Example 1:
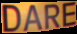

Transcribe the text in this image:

DARE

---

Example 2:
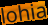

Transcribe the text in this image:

lohia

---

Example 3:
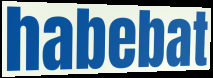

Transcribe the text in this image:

habebat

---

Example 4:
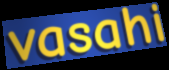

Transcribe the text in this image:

vasahi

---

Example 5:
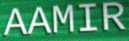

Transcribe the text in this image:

AAMIR